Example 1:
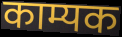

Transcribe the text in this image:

काम्यक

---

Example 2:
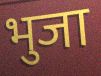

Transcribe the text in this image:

भुजा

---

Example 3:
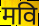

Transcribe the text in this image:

मवि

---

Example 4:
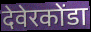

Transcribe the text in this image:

देवेरकोंडा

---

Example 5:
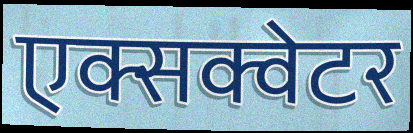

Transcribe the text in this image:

एक्सक्वेटर